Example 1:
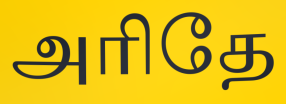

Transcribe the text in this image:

அரிதே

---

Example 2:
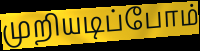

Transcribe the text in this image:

முறியடிப்போம்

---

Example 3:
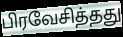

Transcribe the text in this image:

பிரவேசித்தது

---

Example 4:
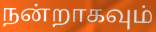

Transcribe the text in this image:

நன்றாகவும்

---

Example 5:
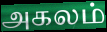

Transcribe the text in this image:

அகலம்